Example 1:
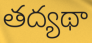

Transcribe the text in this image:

తద్యథా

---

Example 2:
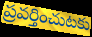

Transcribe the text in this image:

ప్రవర్తించుటకు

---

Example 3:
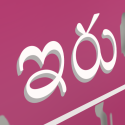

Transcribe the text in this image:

ఇరు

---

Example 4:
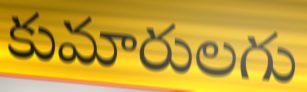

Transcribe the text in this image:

కుమారులగు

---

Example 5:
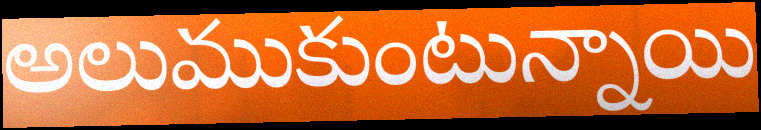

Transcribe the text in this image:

అలుముకుంటున్నాయి